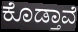
ಕೊಡ್ತಾವೆ